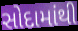
સોદામાંથી